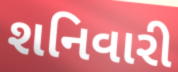
શનિવારી